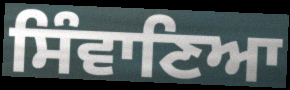
ਸਿੰਵਾਣਿਆ